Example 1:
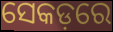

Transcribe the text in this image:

ସେକଡ଼ରେ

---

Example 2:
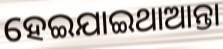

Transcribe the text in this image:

ହେଇଯାଇଥାଆନ୍ତା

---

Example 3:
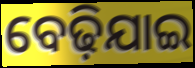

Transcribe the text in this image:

ବେଢ଼ିଯାଇ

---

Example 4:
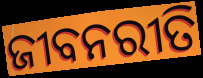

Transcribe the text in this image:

ଜୀବନରୀତି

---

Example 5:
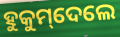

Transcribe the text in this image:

ହୁକୁମ୍‌ଦେଲେ